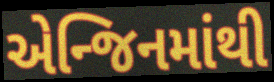
એન્જિનમાંથી